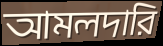
আমলদারি